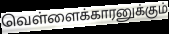
வெள்ளைக்காரனுக்கும்